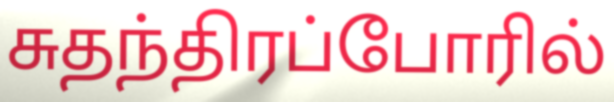
சுதந்திரப்போரில்